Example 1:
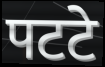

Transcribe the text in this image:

पटटे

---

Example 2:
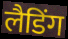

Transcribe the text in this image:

लैडिंग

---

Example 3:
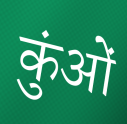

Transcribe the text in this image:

कुंओं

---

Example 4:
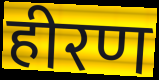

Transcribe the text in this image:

हीरण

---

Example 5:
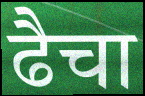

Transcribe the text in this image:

ढैचा